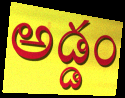
అడ్డం